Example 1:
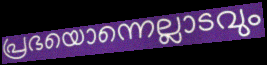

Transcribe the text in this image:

പ്രഭയൊന്നെല്ലാടവും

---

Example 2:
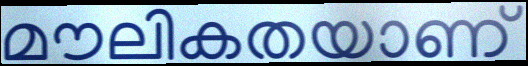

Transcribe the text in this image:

മൗലികതയാണ്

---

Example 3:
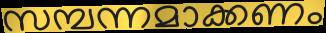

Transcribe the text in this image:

സമ്പന്നമാക്കണം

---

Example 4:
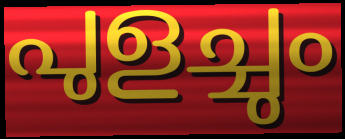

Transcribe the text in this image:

പുളച്ചും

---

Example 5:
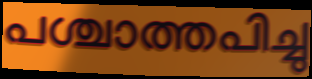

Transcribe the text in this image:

പശ്ചാത്തപിച്ചു